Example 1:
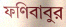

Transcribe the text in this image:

ফণিবাবুর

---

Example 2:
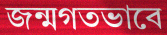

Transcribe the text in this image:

জন্মগতভাবে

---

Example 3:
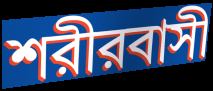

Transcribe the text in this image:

শরীরবাসী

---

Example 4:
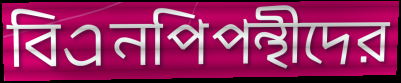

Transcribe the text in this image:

বিএনপিপন্থীদের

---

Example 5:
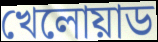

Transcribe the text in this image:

খেলোয়াড